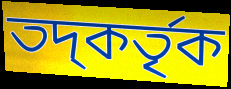
তদ্‌কর্তৃক